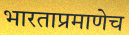
भारताप्रमाणेच